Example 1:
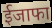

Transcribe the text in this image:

ईजाफा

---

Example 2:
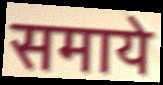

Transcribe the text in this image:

समाये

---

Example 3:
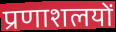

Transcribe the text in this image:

प्रणाशलयों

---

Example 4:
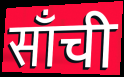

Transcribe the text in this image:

साँची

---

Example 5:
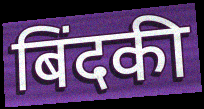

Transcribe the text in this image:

बिंदकी